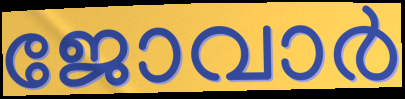
ജോവാർ